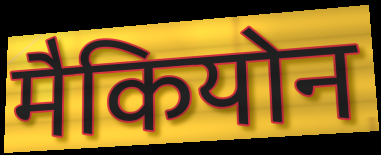
मैकियोन